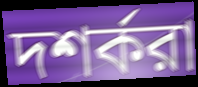
দশর্করা